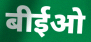
बीईओ